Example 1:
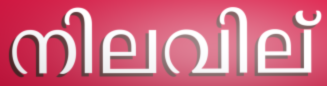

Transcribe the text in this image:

നിലവില്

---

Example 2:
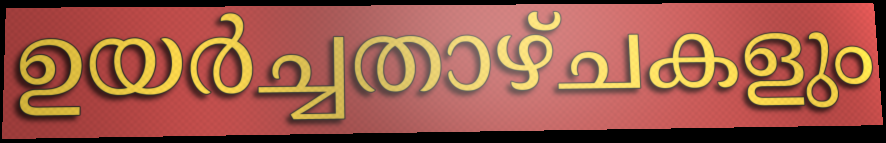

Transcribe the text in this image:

ഉയർച്ചതാഴ്ചകളും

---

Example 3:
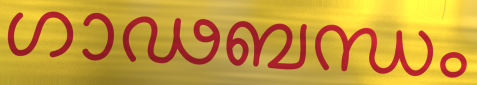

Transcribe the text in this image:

ഗാഢബന്ധം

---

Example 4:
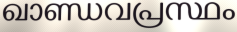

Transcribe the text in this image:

ഖാണ്ഡവപ്രസ്ഥം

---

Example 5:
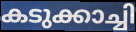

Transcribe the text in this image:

കടുക്കാച്ചി